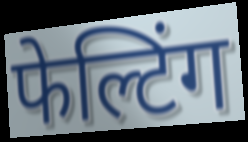
फेल्टिंग